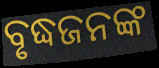
ବୃଦ୍ଧଜନଙ୍କ